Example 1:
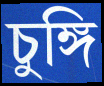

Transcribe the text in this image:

চুঙ্গি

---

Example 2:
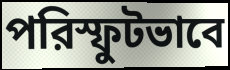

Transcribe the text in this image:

পরিস্ফুটভাবে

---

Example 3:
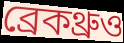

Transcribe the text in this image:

ব্রেকথ্রুও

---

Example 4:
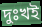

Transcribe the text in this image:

দুঃখই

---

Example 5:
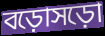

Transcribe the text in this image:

বড়োসড়ো